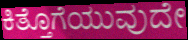
ಕಿತ್ತೊಗೆಯುವುದೇ